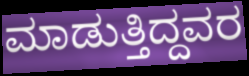
ಮಾಡುತ್ತಿದ್ದವರ